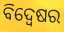
ବିଦ୍ବେଷର